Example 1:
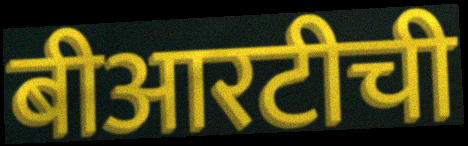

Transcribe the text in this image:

बीआरटीची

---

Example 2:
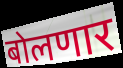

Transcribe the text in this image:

बोलणार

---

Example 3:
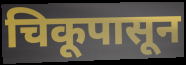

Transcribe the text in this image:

चिकूपासून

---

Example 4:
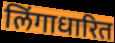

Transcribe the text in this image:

लिंगाधारित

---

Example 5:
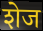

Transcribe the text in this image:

शेज